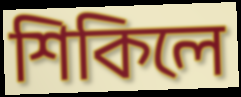
শিকিলে